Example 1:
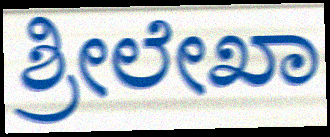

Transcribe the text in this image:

ಶ್ರೀಲೇಖಾ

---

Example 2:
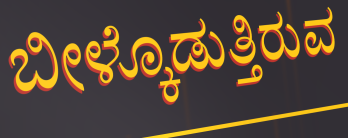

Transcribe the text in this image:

ಬೀಳ್ಕೊಡುತ್ತಿರುವ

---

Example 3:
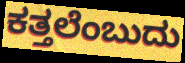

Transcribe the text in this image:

ಕತ್ತಲೆಂಬುದು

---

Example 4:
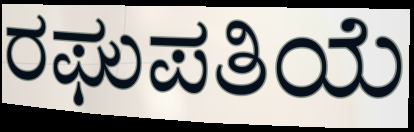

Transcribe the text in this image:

ರಘುಪತಿಯೆ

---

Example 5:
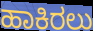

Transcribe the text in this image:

ಹಾಕಿರಲು